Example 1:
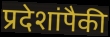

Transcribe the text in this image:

प्रदेशांपैकी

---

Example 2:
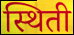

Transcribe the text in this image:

स्थिती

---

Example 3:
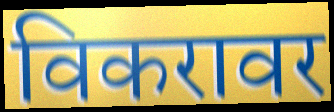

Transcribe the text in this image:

विकरावर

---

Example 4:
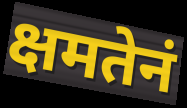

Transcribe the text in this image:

क्षमतेनं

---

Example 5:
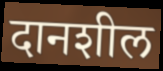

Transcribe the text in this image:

दानशील